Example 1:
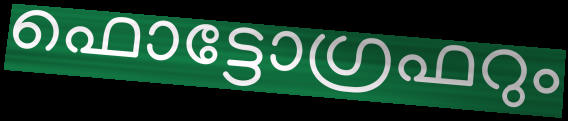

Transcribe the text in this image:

ഫൊട്ടോഗ്രഫറും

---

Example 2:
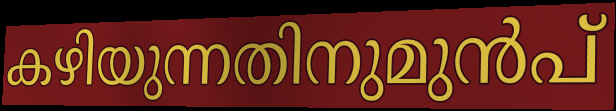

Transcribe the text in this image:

കഴിയുന്നതിനുമുൻപ്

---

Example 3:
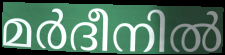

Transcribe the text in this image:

മർദീനിൽ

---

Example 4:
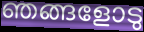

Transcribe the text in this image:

ഞങ്ങളോടു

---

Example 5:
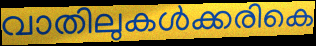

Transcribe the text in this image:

വാതിലുകൾക്കരികെ